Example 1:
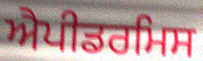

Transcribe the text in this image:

ਐਪੀਡਰਮਿਸ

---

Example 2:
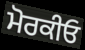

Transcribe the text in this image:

ਮੋਰਕੀਓ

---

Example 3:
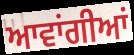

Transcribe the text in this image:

ਆਵਾਂਗੀਆਂ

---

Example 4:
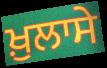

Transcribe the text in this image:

ਖ਼ੁਲਾਸੇ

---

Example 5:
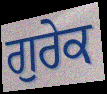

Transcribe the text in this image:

ਗੁਰੇਕ